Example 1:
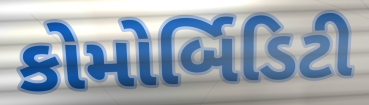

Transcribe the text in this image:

કોમોર્બિડિટી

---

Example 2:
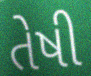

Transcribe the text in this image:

તેષી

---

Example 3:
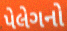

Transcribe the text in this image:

પેલેગનો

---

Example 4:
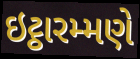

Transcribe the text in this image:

ઇટ્ઠારમ્મણે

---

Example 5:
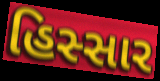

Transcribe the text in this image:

હિસ્સાર